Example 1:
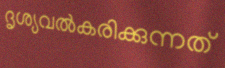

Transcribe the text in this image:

ദൃശ്യവൽകരിക്കുന്നത്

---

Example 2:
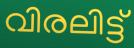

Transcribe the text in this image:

വിരലിട്ട്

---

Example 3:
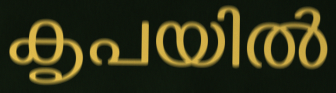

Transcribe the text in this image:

കൃപയിൽ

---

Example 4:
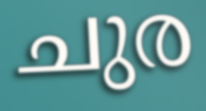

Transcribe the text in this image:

ചുര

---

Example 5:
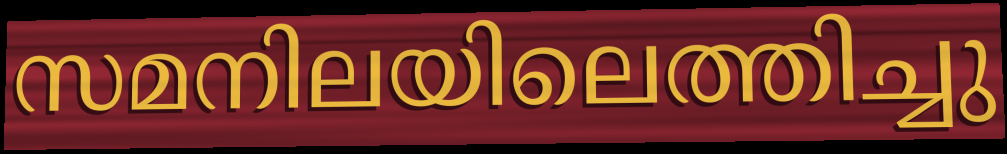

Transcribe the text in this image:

സമനിലയിലെത്തിച്ചു